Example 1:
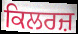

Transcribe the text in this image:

ਕਿਲਰਜ਼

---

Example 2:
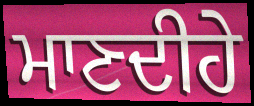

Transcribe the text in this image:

ਮਾਣਦੀਹੇ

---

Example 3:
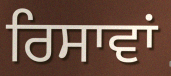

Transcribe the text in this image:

ਰਿਸਾਵਾਂ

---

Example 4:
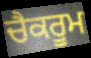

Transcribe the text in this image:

ਚੈਕਰੂਮ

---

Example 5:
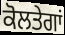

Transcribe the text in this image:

ਕੋਲਤੇਗਾਂ